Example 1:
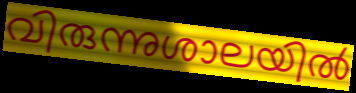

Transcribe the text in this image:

വിരുന്നുശാലയിൽ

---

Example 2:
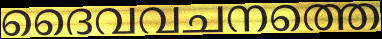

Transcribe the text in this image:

ദൈവവചനത്തെ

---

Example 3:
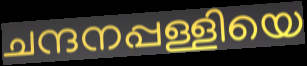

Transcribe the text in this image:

ചന്ദനപ്പള്ളിയെ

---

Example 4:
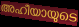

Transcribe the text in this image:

അഹീയായുടെ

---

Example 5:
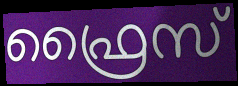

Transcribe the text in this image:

ഫ്രൈസ്